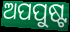
ଅପପୁଷ୍ଟ